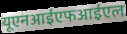
यूएनआईएफआईएल